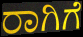
ರಾಗಿಗೆ